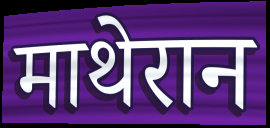
माथेरान